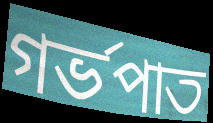
গৰ্ভপাত